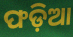
ଫଡ଼ିଆ